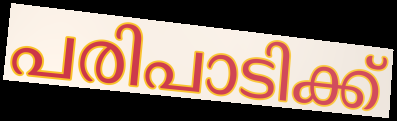
പരിപാടിക്ക്